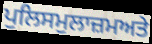
ਪੁਲਿਸਮੁਲਾਜ਼ਮਅਤੇ